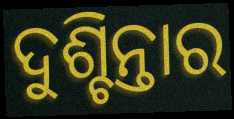
ଦୁଶ୍ଚିନ୍ତାର